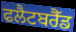
ਫਲੈਟਬਰੈੱਡ